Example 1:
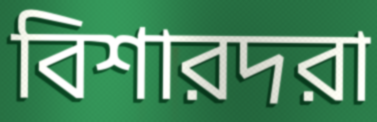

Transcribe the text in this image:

বিশারদরা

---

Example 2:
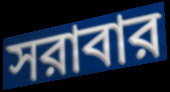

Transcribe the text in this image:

সরাবার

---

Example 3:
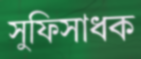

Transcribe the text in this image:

সুফিসাধক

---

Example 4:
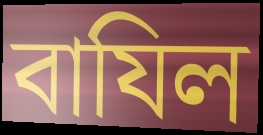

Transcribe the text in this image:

বাযিল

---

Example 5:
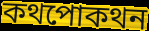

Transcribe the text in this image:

কথপোকথন